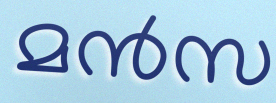
മൻസ